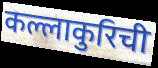
कल्लाकुरिची